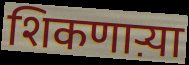
शिकणाऱ्‍या